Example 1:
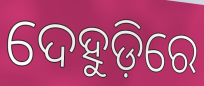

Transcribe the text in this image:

ଦେହୁଡ଼ିରେ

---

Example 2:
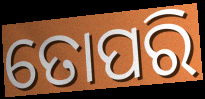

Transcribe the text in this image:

ତୋପରି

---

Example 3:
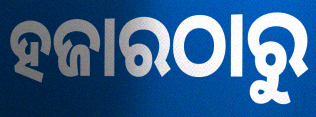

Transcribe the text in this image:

ହଜାରଠାରୁ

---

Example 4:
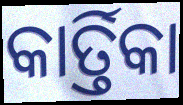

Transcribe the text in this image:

କାର୍ତ୍ତିକା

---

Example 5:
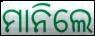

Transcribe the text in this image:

ମାନିଲେ